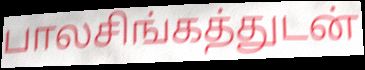
பாலசிங்கத்துடன்